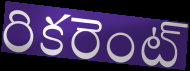
రికరెంట్